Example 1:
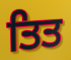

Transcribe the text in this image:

ਤਿਤ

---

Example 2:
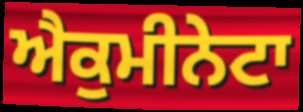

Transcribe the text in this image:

ਐਕੁਮੀਨੇਟਾ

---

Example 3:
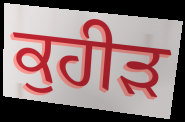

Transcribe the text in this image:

ਕੁਹੀੜ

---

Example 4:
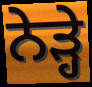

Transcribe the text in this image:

ਨੇੜ੍ਹੇ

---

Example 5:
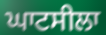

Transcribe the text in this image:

ਘਾਟਸੀਲਾ